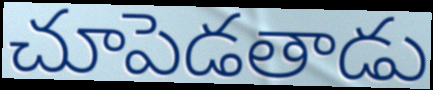
చూపెడతాడు